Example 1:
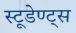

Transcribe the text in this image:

स्टूडेण्ट्स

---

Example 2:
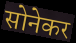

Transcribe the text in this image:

सोनेकर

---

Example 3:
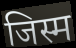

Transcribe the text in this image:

जिस्म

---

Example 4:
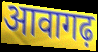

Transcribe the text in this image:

आवागढ़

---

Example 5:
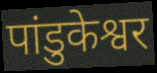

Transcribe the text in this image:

पांडुकेश्वर